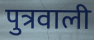
पुत्रवाली